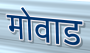
मोवाड